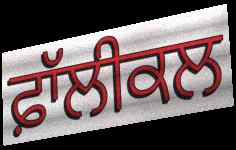
ਫ਼ਾੱਲੀਕਲ